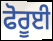
ਫੋਰੂਈ